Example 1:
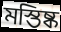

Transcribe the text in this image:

মস্তিষ্ক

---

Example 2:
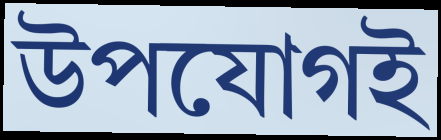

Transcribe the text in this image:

উপযোগই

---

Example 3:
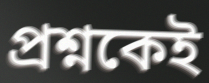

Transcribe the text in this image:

প্রশ্নকেই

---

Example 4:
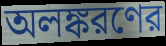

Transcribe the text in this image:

অলঙ্করণের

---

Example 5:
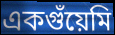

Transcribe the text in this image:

একগুঁয়েমি